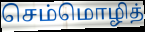
செம்மொழித்